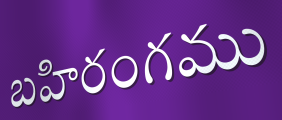
బహిరంగము